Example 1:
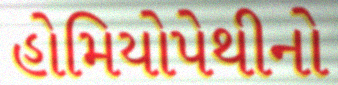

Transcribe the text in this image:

હોમિયોપેથીનો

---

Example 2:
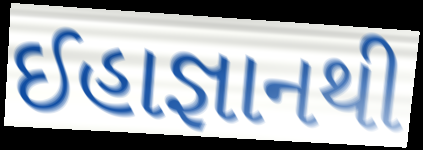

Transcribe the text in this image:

ઈહાજ્ઞાનથી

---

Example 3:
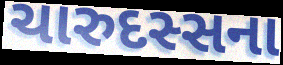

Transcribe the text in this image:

ચારુદસ્સના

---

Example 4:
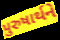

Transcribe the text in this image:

પુરુષાર્થને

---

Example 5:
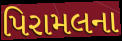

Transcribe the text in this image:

પિરામલના